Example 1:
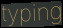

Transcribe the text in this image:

typing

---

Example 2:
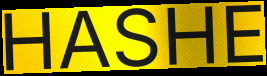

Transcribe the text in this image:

HASHE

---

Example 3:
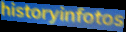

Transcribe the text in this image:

historyinfotos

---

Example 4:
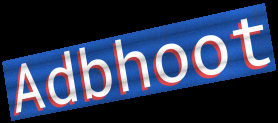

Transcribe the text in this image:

Adbhoot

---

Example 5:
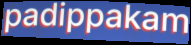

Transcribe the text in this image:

padippakam